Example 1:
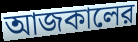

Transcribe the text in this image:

আজকালের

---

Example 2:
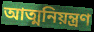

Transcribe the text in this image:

আত্মনিয়ন্ত্রণ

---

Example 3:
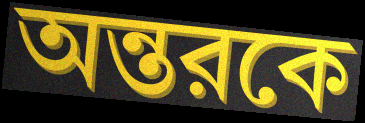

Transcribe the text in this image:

অন্তরকে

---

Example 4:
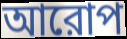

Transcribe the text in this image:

আরোপ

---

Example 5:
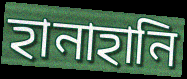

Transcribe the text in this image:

হানাহানি